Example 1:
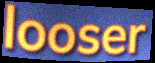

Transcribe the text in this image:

looser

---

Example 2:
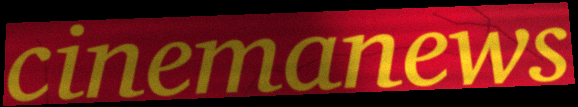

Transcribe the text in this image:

cinemanews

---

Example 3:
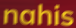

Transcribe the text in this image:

nahis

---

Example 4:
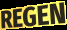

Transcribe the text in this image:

REGEN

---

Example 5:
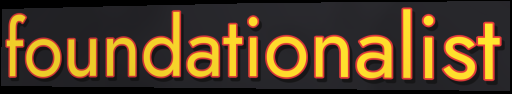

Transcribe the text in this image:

foundationalist